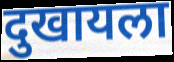
दुखायला